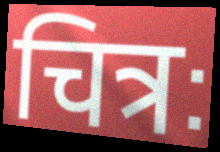
चित्रः